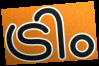
ട്രിം